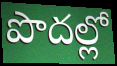
పొదల్లో